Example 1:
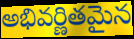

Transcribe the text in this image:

అభివర్ణితమైన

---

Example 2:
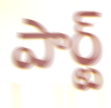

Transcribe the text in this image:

పార్ట్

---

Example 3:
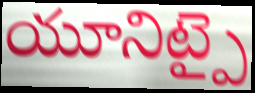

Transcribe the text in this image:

యూనిట్పై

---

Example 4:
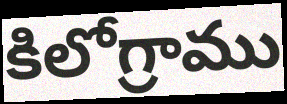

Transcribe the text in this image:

కిలోగ్రాము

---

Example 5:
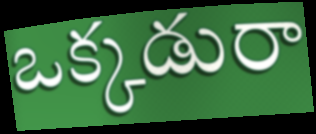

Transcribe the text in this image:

ఒక్కడురా